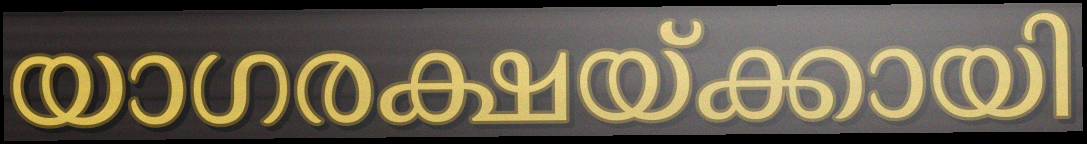
യാഗരക്ഷയ്ക്കായി